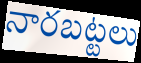
నారబట్టలు